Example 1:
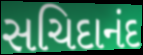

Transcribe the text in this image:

સચિદાનંદ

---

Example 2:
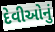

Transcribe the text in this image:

દેવીઓનું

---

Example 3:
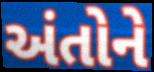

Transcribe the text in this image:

અંતોને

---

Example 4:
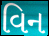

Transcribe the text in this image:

વિન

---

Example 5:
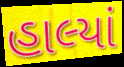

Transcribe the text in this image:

હાલ્યાં